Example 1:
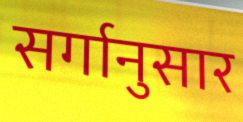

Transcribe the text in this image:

सर्गानुसार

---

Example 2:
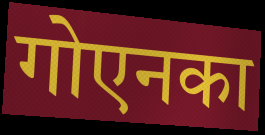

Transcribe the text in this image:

गोएनका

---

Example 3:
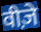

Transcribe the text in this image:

वीज़े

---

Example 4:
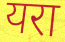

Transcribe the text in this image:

यरा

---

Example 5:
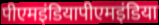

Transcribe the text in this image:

पीएमइंडियापीएमइंडिया